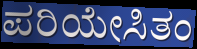
ಪರಿಯೇಸಿತಂ